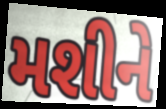
મશીને